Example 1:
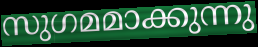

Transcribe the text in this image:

സുഗമമാക്കുന്നു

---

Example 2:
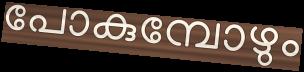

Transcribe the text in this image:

പോകുമ്പോഴും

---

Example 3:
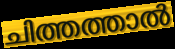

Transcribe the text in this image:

ചിത്തത്താൽ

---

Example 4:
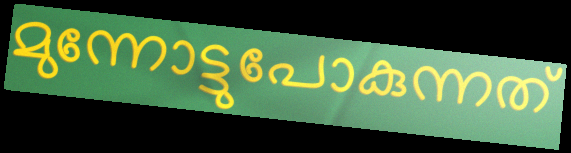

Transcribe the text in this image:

മുന്നോട്ടുപോകുന്നത്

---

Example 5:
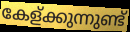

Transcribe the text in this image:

കേള്ക്കുന്നുണ്ട്